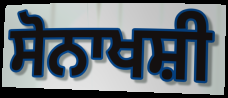
ਸੋਨਾਖਸ਼ੀ